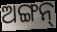
ଅଙ୍ଗନ୍